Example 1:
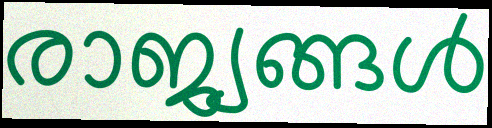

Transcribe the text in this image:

രാജ്യങ്ങൾ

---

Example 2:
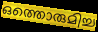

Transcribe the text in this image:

ഒത്തൊരുമിച്ച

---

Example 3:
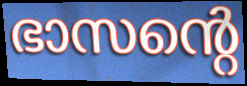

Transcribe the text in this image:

ഭാസന്റെ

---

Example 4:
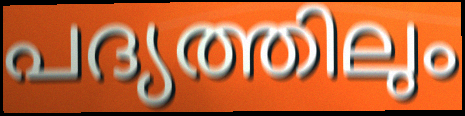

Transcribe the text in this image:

പദ്യത്തിലും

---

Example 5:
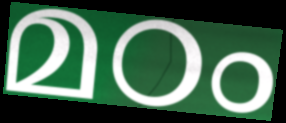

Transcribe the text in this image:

മഠം